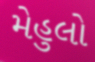
મેહુલો